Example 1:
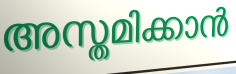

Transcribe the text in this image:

അസ്തമിക്കാൻ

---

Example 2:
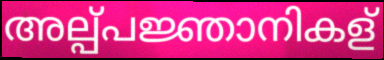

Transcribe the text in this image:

അല്പ്പജ്ഞാനികള്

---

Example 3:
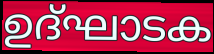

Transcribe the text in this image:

ഉദ്ഘാടക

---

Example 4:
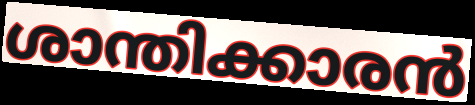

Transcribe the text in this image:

ശാന്തിക്കാരൻ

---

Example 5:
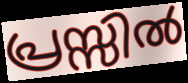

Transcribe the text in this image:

പ്രസ്സിൽ